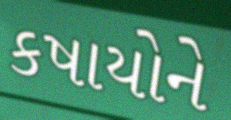
કષાયોને